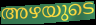
അഴയുടെ